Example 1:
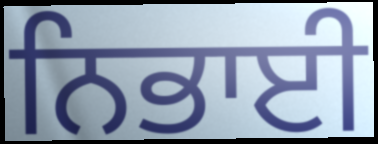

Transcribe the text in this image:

ਨਿਭਾਈ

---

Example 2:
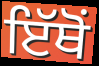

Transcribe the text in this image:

ਇੱਥੋਂ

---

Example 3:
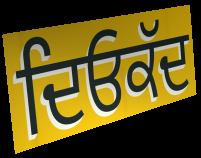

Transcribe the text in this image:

ਦਿਓਕੱਦ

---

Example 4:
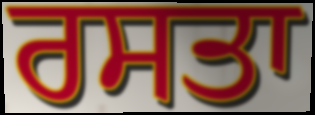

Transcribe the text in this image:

ਰਸਤਾ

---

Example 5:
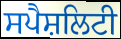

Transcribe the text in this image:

ਸਪੈਸ਼ਲਿਟੀ